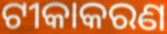
ଟୀକାକରଣ